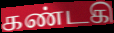
கண்டகி